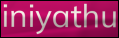
iniyathu